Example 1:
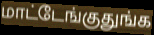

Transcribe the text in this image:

மாட்டேங்குதுங்க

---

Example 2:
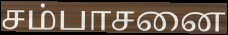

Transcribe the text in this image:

சம்பாசனை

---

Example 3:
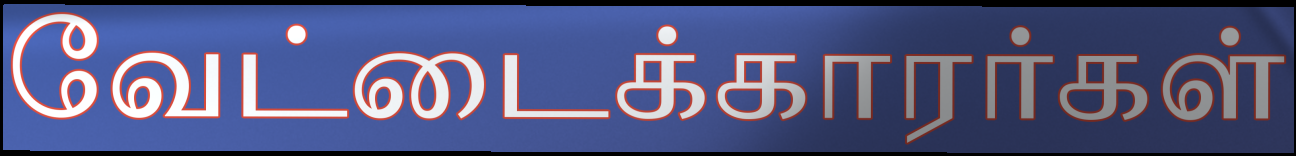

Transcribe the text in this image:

வேட்டைக்காரர்கள்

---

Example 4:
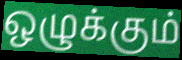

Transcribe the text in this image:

ஒழுக்கும்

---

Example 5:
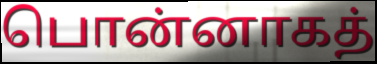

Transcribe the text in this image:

பொன்னாகத்